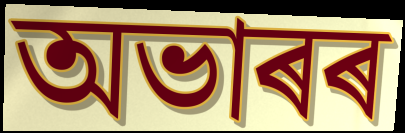
অভাৰৰ